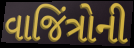
વાજિંત્રોની